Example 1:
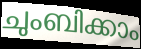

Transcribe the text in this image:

ചുംബിക്കാം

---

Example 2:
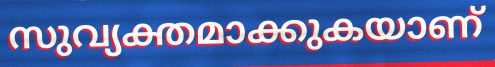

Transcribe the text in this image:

സുവ്യക്തമാക്കുകയാണ്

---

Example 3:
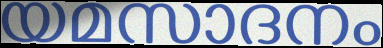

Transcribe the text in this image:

യമസാദനം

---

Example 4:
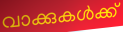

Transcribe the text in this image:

വാക്കുകൾക്ക്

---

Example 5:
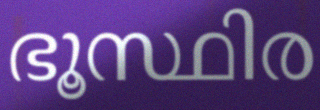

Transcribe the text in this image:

ഭൂസ്ഥിര